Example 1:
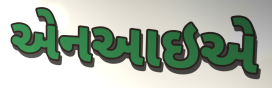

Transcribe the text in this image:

એનઆઇએ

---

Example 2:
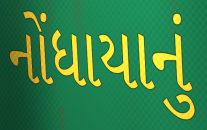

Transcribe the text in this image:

નોંધાયાનું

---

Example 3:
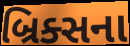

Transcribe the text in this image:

બ્રિક્સના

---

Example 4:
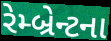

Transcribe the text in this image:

રેમ્બ્રેન્ટના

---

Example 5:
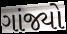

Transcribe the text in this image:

ગાંજ્યો